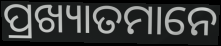
ପ୍ରଖ୍ୟାତମାନେ